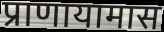
प्राणायामास